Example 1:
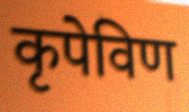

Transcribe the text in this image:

कृपेविण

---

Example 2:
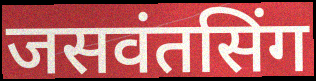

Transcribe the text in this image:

जसवंतसिंग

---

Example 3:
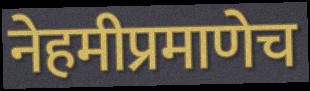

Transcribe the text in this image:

नेहमीप्रमाणेच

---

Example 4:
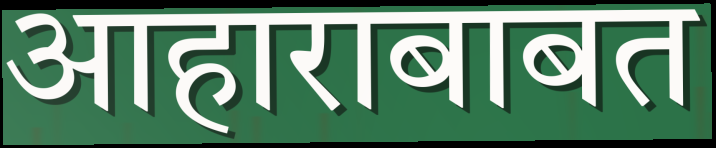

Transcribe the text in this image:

आहाराबाबत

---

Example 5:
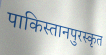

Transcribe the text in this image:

पाकिस्तानपुरस्कृत